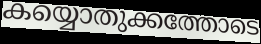
കയ്യൊതുക്കത്തോടെ